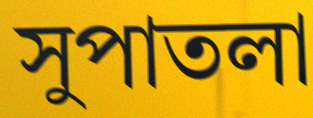
সুপাতলা